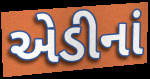
એડીનાં